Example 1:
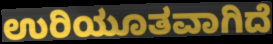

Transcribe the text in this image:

ಉರಿಯೂತವಾಗಿದೆ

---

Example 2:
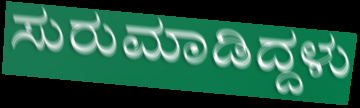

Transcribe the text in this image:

ಸುರುಮಾಡಿದ್ದಳು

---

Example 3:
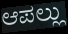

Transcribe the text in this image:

ಆಪಲ್ಲು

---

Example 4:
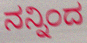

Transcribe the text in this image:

ನನ್ನಿಂದ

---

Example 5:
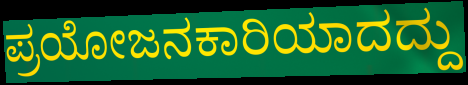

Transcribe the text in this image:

ಪ್ರಯೋಜನಕಾರಿಯಾದದ್ದು